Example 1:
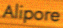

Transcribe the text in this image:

Alipore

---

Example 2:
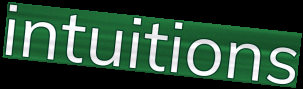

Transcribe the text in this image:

intuitions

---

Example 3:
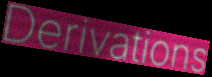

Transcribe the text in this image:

Derivations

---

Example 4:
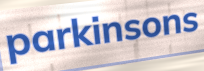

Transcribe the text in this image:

parkinsons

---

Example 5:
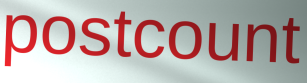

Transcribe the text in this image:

postcount